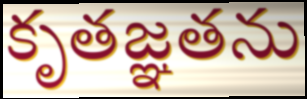
కృతజ్ఞతను